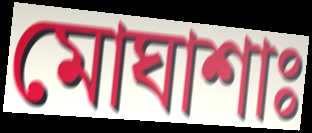
মোঘাশাঃ